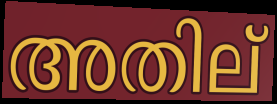
അതില്